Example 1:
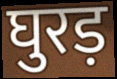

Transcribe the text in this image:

घुरड़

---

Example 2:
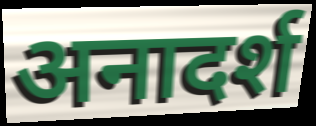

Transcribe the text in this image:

अनादर्श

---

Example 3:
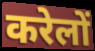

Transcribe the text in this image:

करेलों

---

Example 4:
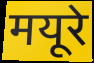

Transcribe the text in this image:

मयूरे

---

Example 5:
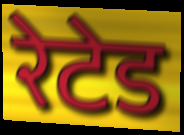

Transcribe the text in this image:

रेटेड